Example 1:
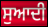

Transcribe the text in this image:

ਸੁਆਦੀ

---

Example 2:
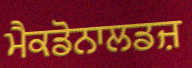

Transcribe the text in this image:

ਮੈਕਡੋਨਾਲਡਜ਼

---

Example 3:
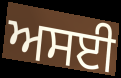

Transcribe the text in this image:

ਅਸਈ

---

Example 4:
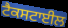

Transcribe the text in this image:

ਟੈਕਸਟਾਈਲ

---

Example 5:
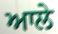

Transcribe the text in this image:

ਆਲੇ